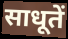
साधूतें